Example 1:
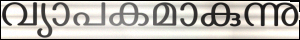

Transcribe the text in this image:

വ്യാപകമാകുന്നു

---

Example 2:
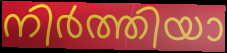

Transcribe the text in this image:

നിർത്തിയാ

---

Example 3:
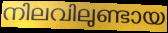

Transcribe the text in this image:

നിലവിലുണ്ടായ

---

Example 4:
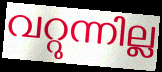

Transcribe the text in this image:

വറ്റുന്നില്ല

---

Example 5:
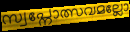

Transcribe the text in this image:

സ്വപ്നോത്സവമല്ലോ